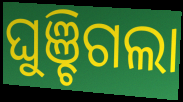
ଘୁଞ୍ଚିଗଲା